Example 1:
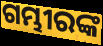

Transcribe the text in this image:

ଗମ୍ଭୀରଙ୍କ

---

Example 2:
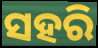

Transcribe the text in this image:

ସହରି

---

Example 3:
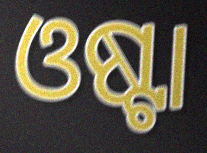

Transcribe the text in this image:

ଓଷ୍ଟା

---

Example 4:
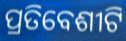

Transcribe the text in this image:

ପ୍ରତିବେଶୀଟି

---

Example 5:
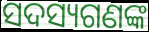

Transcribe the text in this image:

ସଦସ୍ୟଗଣଙ୍କ